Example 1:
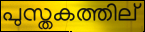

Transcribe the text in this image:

പുസ്തകത്തില്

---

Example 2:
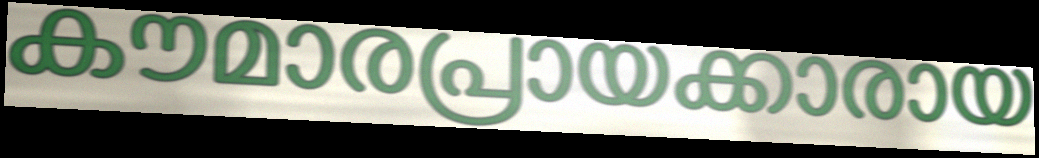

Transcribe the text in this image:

കൗമാരപ്രായക്കാരായ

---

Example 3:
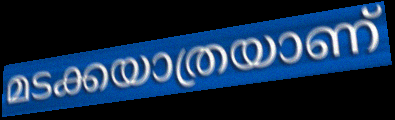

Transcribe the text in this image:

മടക്കയാത്രയാണ്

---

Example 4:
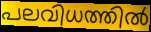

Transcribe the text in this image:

പലവിധത്തിൽ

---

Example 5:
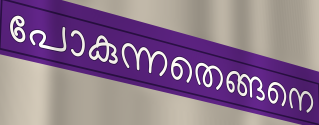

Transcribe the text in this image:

പോകുന്നതെങ്ങനെ